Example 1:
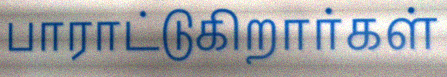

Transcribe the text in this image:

பாராட்டுகிறார்கள்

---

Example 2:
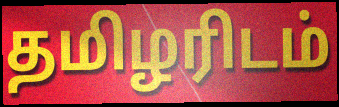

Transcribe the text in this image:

தமிழரிடம்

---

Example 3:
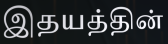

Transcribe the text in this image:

இதயத்தின்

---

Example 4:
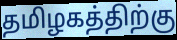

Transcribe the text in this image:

தமிழகத்திற்கு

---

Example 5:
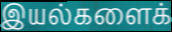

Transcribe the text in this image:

இயல்களைக்